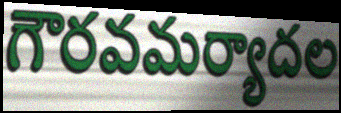
గౌరవమర్యాదల